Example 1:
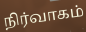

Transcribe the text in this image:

நிர்வாகம்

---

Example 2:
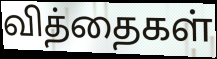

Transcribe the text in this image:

வித்தைகள்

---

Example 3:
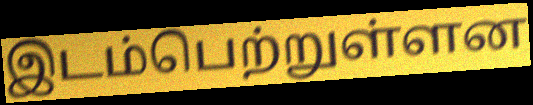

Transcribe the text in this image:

இடம்பெற்றுள்ளன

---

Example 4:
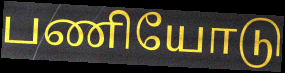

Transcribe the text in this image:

பணியோடு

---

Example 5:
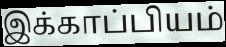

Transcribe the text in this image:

இக்காப்பியம்